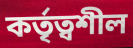
কর্তৃত্বশীল